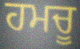
ਹਮਚੂ